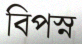
বিপস্ন